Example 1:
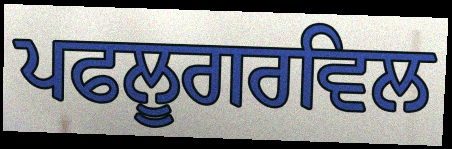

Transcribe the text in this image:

ਪਫਲੂਗਰਵਿਲ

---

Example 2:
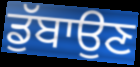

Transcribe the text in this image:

ਡੁੱਬਾਉਣ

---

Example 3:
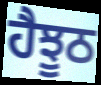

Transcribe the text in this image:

ਹੈਝੂਠ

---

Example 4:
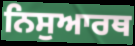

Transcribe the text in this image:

ਨਿਸੁਆਰਥ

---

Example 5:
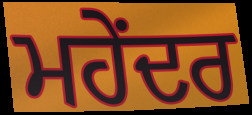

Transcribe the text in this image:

ਮਹੇਂਦਰ